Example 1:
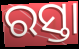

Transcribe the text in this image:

ରସ୍ତା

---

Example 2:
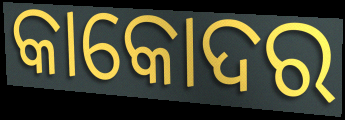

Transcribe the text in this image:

କାକୋଦର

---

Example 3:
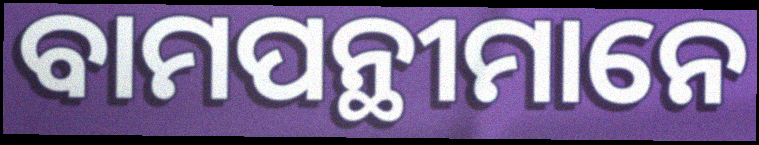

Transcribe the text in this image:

ବାମପନ୍ଥୀମାନେ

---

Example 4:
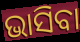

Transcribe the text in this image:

ଭାସିବା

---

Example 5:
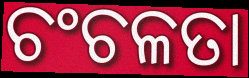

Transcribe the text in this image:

ଚଂଚଳତା